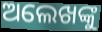
ଅଲେଖଙ୍କୁ